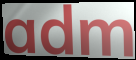
adm